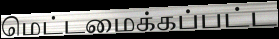
மெட்டமைக்கப்பட்ட